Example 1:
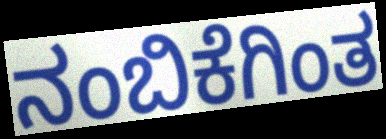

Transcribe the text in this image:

ನಂಬಿಕೆಗಿಂತ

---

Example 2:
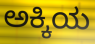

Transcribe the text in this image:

ಅಕ್ಕಿಯ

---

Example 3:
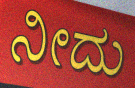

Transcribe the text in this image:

ನೀದು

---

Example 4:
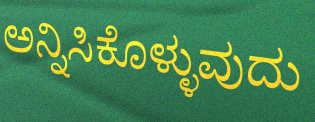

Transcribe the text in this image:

ಅನ್ನಿಸಿಕೊಳ್ಳುವುದು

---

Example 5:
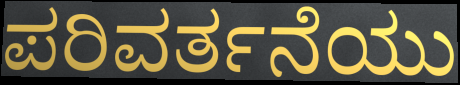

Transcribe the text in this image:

ಪರಿವರ್ತನೆಯು